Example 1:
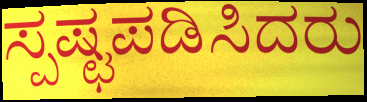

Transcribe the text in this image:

ಸ್ಪಷ್ಟಪಡಿಸಿದರು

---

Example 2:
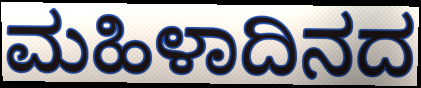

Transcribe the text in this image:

ಮಹಿಳಾದಿನದ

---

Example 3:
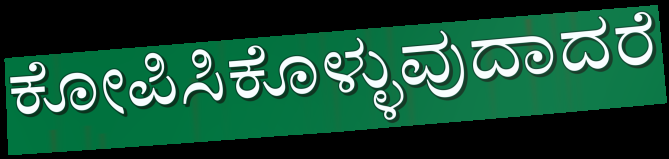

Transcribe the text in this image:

ಕೋಪಿಸಿಕೊಳ್ಳುವುದಾದರೆ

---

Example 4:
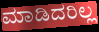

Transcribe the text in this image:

ಮಾಡಿದರಿಲ್ಲ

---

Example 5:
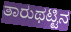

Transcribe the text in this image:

ತಾರುಥಟ್ಟಿನ